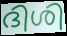
ദിശി